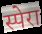
स्पेरा